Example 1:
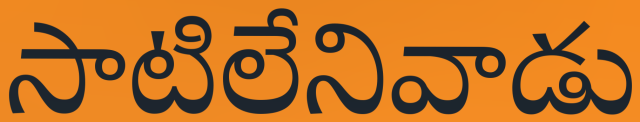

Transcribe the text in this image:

సాటిలేనివాడు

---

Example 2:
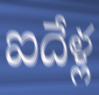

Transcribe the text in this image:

ఐదేళ్ల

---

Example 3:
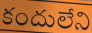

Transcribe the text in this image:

కందులేని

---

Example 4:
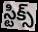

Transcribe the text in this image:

స్టిక్స్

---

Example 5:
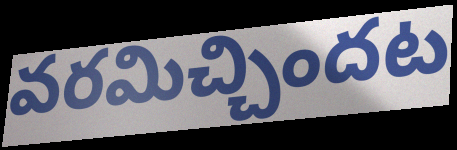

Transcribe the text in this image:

వరమిచ్చిందట